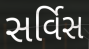
સર્વિસ